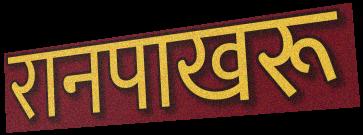
रानपाखरू